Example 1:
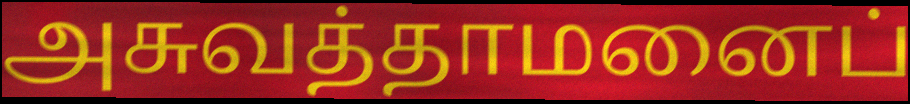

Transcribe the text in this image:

அசுவத்தாமனைப்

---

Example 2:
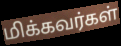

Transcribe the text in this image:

மிக்கவர்கள்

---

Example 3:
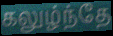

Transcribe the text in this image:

கலுழ்ந்தே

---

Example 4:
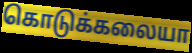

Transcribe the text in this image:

கொடுக்கலையா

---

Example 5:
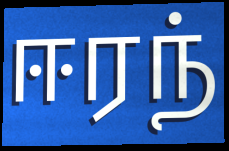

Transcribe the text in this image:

ஈரந்